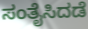
ಸಂತೈಸಿದಡೆ